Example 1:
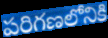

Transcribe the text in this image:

పరిగణలోనికి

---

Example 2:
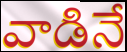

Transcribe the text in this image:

వాడినే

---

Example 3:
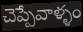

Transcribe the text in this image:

చెప్పేవాళ్ళం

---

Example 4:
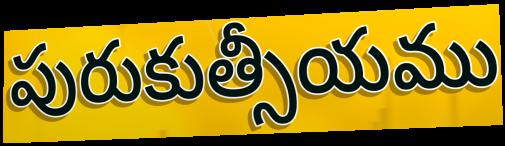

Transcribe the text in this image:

పురుకుత్సీయము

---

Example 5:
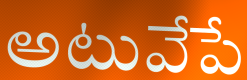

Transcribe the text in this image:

అటువేపే